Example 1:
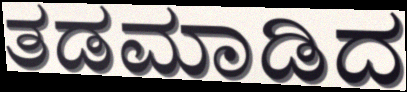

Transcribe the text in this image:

ತಡಮಾಡಿದ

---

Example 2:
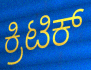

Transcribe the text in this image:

ಕ್ರಿಟಿಕ್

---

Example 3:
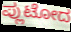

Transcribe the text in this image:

ಪ್ಲುಟೋದ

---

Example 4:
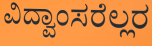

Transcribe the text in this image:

ವಿದ್ವಾಂಸರೆಲ್ಲರ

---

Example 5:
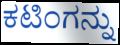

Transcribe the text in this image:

ಕಟಿಂಗನ್ನು